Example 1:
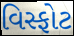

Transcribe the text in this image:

વિસ્ફોટ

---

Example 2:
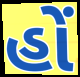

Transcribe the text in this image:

હોં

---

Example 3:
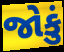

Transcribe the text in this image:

જોકું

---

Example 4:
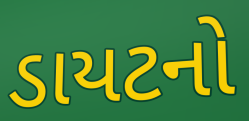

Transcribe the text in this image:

ડાયટનો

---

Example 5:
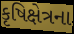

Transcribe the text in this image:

કૃષિક્ષેત્રના